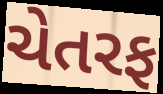
ચેતરફ